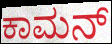
ಕಾಮನ್